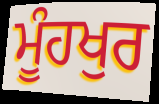
ਮੂੰਹਖੁਰ